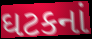
ઘટકનાં